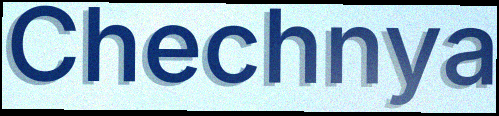
Chechnya